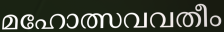
മഹോത്സവവതീം